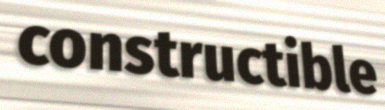
constructible